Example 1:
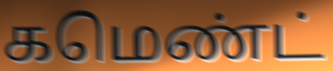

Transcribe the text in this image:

கமெண்ட்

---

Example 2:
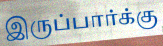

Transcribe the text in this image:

இருப்பார்க்கு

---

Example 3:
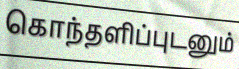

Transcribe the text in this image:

கொந்தளிப்புடனும்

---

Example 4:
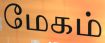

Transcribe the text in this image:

மேகம்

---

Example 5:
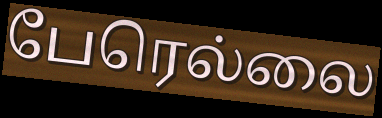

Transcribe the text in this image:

பேரெல்லை